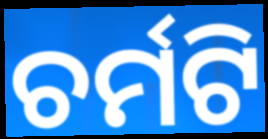
ଚର୍ମଟି